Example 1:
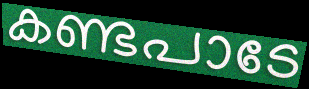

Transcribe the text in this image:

കണ്ടപാടേ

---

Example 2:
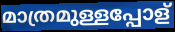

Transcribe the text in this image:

മാത്രമുള്ളപ്പോള്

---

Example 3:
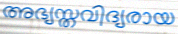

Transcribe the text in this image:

അഭ്യസ്തവിദ്യരായ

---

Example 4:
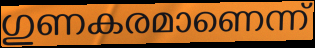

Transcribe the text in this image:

ഗുണകരമാണെന്ന്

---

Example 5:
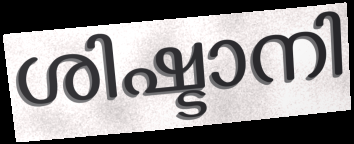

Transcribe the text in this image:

ശിഷ്ടാനി